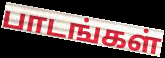
பாடங்கள்